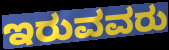
ಇರುವವರು